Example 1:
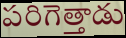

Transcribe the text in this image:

పరిగెత్తాడు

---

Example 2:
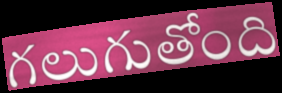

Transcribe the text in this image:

గలుగుతోంది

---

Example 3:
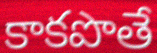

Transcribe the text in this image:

కాకపొతే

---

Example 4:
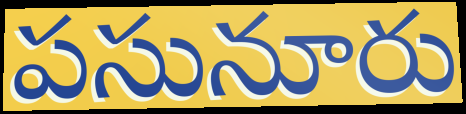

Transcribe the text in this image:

పసునూరు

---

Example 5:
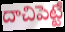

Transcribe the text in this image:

దాచిపెట్టే